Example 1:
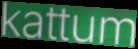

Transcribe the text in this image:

kattum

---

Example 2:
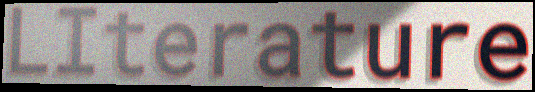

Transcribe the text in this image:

LIterature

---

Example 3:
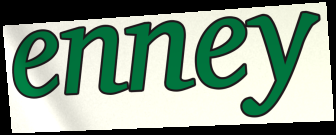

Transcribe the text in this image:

enney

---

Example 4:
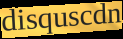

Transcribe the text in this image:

disquscdn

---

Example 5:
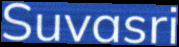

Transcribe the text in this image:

Suvasri